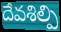
దేవశిల్పి